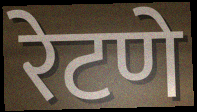
रेटणे